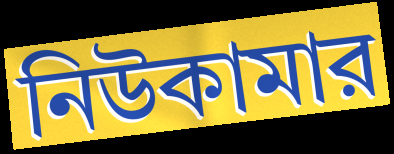
নিউকামার